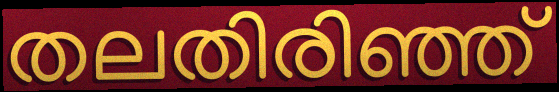
തലതിരിഞ്ഞ്